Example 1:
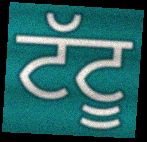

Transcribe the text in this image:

ਟੱਟੂ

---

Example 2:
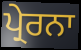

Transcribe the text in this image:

ਪ੍ਰੇਰਨਾ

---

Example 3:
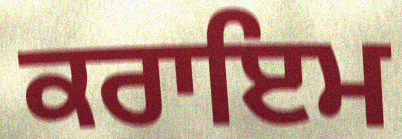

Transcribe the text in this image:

ਕਰਾਇਮ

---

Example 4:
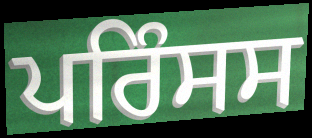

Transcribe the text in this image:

ਪਰਿੰਸਸ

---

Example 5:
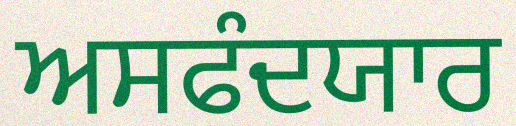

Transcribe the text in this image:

ਅਸਫੰਦਯਾਰ